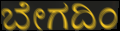
ಬೇಗದಿಂ